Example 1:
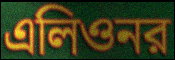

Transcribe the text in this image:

এলিওনর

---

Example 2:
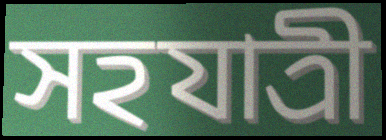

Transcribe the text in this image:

সহযাত্রী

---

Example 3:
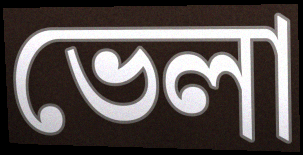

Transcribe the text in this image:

ভেলা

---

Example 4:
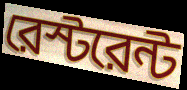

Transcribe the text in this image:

রেস্টরেন্ট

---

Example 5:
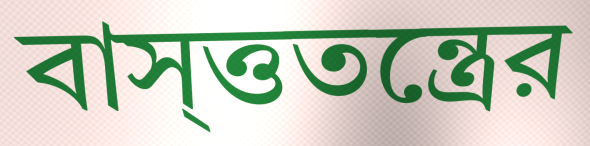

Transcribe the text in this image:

বাস্ত্ততন্ত্রের